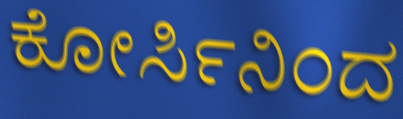
ಕೋರ್ಸಿನಿಂದ